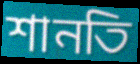
শানতি